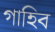
গাহিব